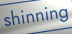
shinning